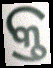
କ୍ତ